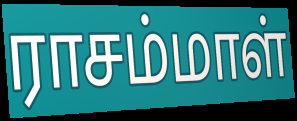
ராசம்மாள்